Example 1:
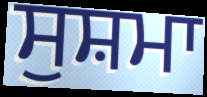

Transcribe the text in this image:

ਸੁਸ਼ਮਾ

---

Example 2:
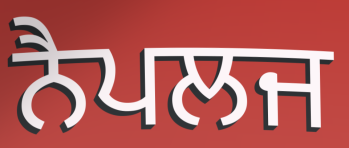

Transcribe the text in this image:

ਨੈਪਲਜ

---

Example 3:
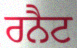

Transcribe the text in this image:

ਰਨੈਟ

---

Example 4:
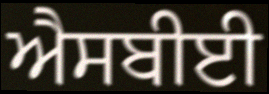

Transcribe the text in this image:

ਐਸਬੀਈ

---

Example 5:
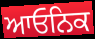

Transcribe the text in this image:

ਆਓਨਿਕ